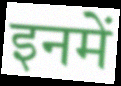
इनमें